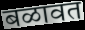
बळावत